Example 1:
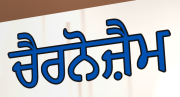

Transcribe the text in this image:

ਚੈਰਨੋਜ਼ੈਮ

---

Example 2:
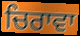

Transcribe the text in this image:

ਚਿਰਾਵਾ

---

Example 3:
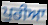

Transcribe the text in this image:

ਪੁਰੀਆ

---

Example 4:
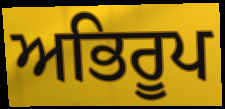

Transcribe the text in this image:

ਅਭਿਰੂਪ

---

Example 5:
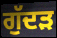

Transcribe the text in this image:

ਗੁੱਦੜ